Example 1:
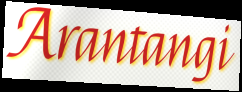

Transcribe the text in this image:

Arantangi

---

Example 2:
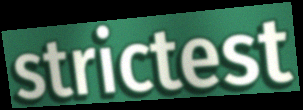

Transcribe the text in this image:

strictest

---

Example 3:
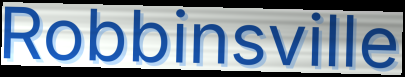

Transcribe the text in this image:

Robbinsville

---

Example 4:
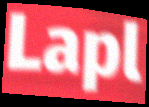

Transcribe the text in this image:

Lapl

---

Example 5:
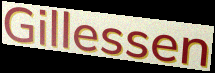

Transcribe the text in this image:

Gillessen